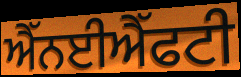
ਐੱਨਈਐੱਫਟੀ